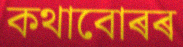
কথাবোৰৰ